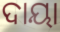
ଦାୟା